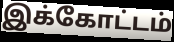
இக்கோட்டம்